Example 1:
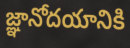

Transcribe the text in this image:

జ్ఞానోదయానికి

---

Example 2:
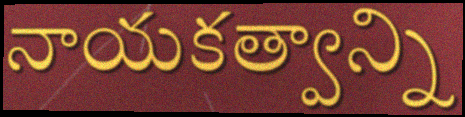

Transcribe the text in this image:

నాయకత్వాన్ని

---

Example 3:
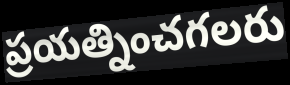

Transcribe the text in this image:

ప్రయత్నించగలరు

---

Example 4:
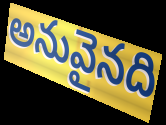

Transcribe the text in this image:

అనువైనది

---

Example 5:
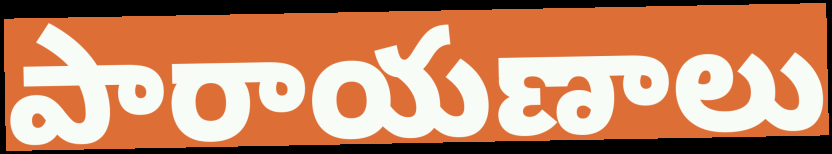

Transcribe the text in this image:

పారాయణాలు